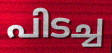
പിടച്ച